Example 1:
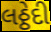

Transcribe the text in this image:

લઠ્ઠેદી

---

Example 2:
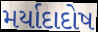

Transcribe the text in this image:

મર્યાદાદોષ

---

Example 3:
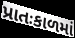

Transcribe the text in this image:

પ્રાતઃકાળમાં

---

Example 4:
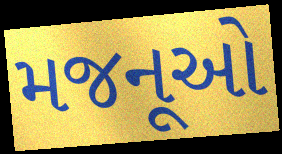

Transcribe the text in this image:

મજનૂઓ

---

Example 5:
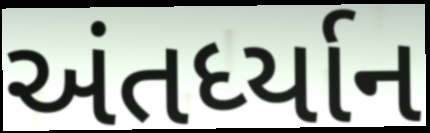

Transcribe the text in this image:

અંતર્ધ્યાન